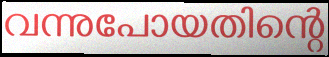
വന്നുപോയതിന്റെ